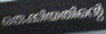
ഒരുക്കിയതിന്റെ